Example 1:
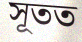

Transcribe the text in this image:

সূতত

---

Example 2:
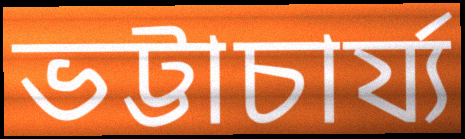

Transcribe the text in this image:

ভট্টাচাৰ্য্য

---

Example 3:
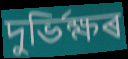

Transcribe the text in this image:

দুৰ্ভিক্ষৰ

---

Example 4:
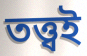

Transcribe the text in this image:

তত্ত্বই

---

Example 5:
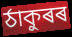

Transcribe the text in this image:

ঠাকুৰৰ